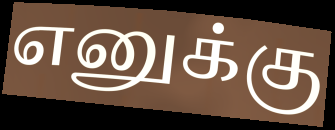
எனுக்கு